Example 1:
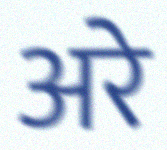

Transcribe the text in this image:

अरे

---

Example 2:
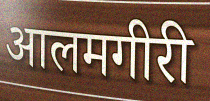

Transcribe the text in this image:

आलमगीरी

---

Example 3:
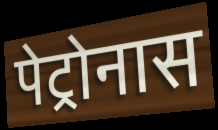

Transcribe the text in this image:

पेट्रोनास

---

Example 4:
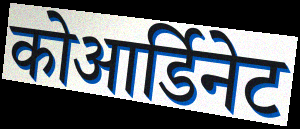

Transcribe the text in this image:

कोआर्डिनेट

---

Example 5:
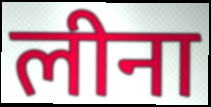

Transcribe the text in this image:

लीना